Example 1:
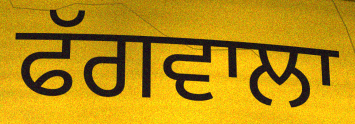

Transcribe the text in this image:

ਫੱਗਵਾਲਾ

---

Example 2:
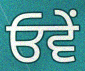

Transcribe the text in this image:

ਓਵੇਂ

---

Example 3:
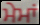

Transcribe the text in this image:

ਮੇਮਾਂ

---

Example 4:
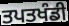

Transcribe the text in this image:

ਤਪਤਖੰਡੀ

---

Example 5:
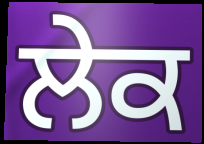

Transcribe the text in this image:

ਲੇਕ